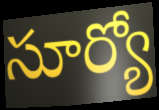
సూర్యో